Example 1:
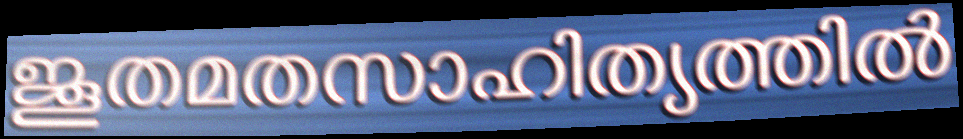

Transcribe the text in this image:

ജൂതമതസാഹിത്യത്തിൽ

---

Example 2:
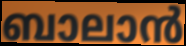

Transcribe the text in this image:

ബാലാൻ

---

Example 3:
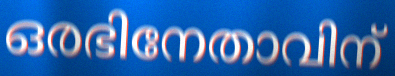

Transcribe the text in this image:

ഒരഭിനേതാവിന്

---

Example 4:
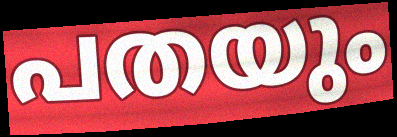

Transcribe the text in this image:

പതയും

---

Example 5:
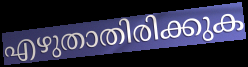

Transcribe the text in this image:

എഴുതാതിരിക്കുക